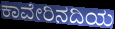
ಕಾವೇರಿನದಿಯ